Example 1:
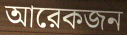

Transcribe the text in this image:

আরেকজন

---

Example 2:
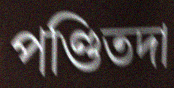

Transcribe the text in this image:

পণ্ডিতদা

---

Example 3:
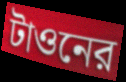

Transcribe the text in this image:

টাওনের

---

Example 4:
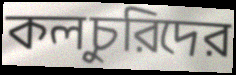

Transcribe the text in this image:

কলচুরিদের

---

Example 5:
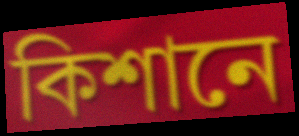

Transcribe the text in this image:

কিশানে